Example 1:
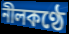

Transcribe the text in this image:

নীলকণ্ঠে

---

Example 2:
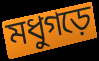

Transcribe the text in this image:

মধুগড়ে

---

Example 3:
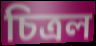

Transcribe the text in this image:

চিত্রল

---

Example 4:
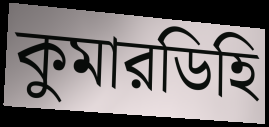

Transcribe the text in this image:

কুমারডিহি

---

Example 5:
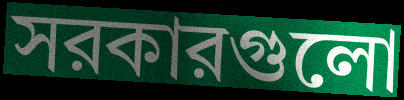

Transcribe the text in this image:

সরকারগুলো